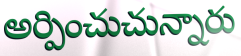
అర్పించుచున్నారు